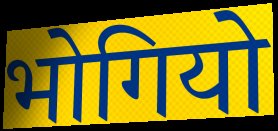
भोगियो